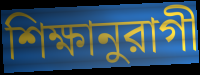
শিক্ষানুরাগী